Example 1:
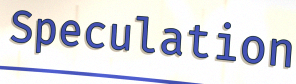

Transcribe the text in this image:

Speculation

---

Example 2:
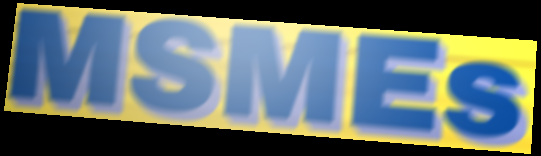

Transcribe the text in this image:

MSMEs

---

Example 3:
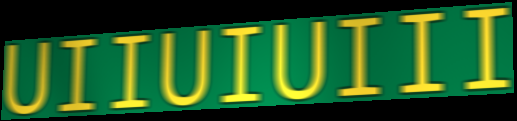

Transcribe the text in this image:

UIIUIUIII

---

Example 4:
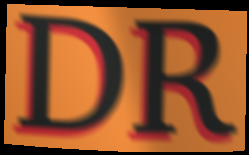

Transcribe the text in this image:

DR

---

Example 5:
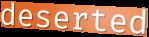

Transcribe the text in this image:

deserted